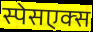
स्‍पेसएक्‍स